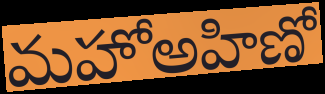
మహోఅహిణో